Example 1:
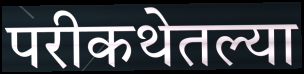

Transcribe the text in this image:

परीकथेतल्या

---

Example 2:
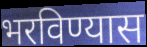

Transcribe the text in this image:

भरविण्यास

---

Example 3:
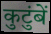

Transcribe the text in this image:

कुटुंबें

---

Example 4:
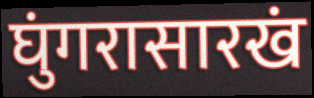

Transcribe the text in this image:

घुंगरासारखं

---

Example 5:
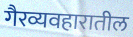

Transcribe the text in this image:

गैरव्यवहारातील